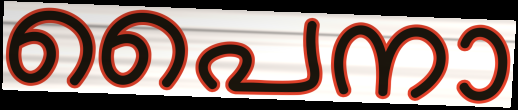
പൈനാ